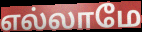
எல்லாமே